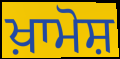
ਖ਼ਾਮੋਸ਼